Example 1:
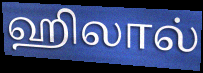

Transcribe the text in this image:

ஹிலால்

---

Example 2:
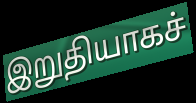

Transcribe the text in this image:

இறுதியாகச்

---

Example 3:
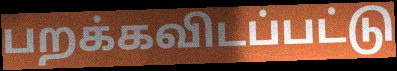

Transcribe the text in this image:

பறக்கவிடப்பட்டு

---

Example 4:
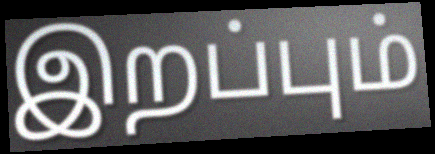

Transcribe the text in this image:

இறப்பும்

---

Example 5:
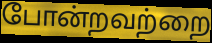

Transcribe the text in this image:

போன்றவற்றை